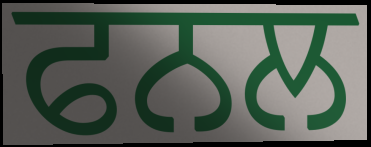
ਫਨਲ